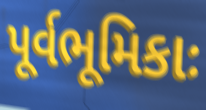
પૂર્વભૂમિકાઃ